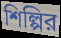
শিল্পির